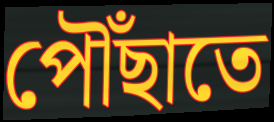
পৌঁছাতে